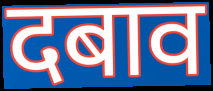
दबाव